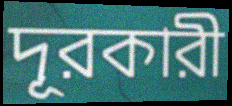
দূরকারী